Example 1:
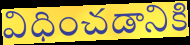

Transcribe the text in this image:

విధించడానికి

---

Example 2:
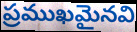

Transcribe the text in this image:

ప్రముఖమైనవి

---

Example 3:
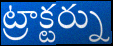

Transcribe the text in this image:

ట్రాక్టర్ను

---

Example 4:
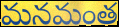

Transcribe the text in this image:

మనమంత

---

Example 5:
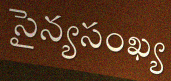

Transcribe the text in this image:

సైన్యసంఖ్య